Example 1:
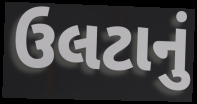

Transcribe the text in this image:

ઉલટાનું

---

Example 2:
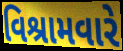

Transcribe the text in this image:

વિશ્રામવારે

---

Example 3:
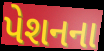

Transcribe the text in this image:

પેશનના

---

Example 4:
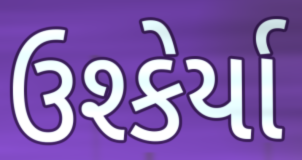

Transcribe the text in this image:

ઉશ્કેર્યા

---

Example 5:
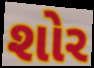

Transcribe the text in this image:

શોર